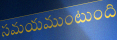
సమయముంటుంది